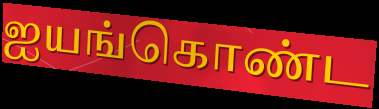
ஐயங்கொண்ட